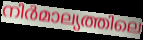
നിർമാല്യത്തിലെ